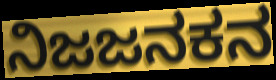
ನಿಜಜನಕನ